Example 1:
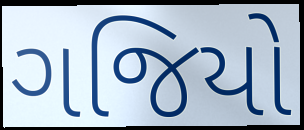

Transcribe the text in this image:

ગજિયો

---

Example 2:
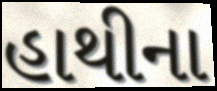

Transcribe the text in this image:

હાથીના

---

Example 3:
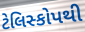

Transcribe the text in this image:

ટેલિસ્કોપથી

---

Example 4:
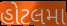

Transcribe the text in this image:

હોટલમા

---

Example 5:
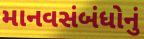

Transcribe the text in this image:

માનવસંબંધોનું